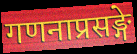
गणनाप्रसङ्गे